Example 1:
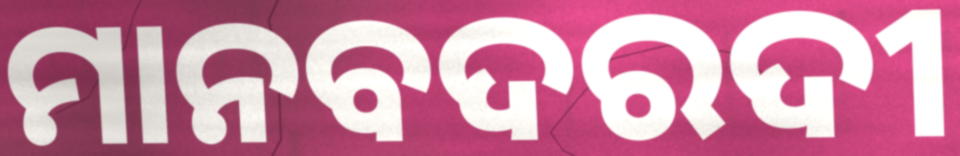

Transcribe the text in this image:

ମାନବଦରଦୀ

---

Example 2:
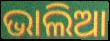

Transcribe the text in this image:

ଭାଲିଆ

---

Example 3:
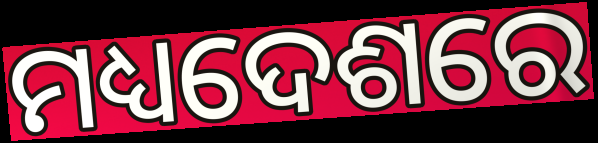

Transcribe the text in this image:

ମଧ୍ୟଦେଶରେ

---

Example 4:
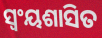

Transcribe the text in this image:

ସ୍ୱଂୟଶାସିତ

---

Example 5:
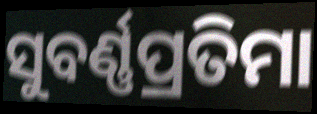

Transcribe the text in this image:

ସୁବର୍ଣ୍ଣପ୍ରତିମା